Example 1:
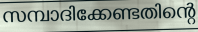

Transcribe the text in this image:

സമ്പാദിക്കേണ്ടതിന്റെ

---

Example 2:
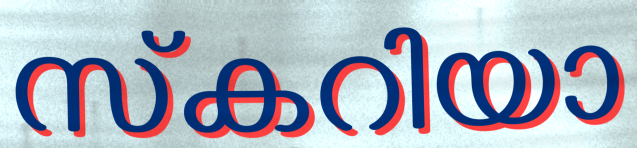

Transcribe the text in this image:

സ്‌കറിയാ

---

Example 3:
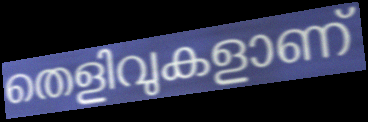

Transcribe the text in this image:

തെളിവുകളാണ്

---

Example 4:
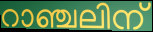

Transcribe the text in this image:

റാഞ്ചലിന്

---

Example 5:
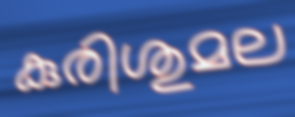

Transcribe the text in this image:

കുരിശുമല